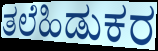
ತಲೆಹಿಡುಕರ